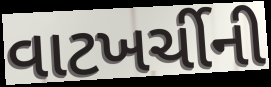
વાટખર્ચીની